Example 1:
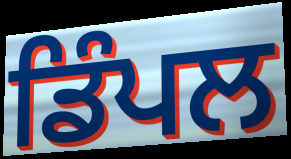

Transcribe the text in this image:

ਡਿੰਪਲ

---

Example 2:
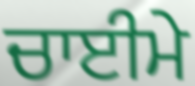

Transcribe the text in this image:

ਚਾਈਮੇ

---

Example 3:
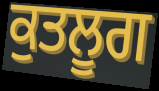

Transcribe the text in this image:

ਕੁਤਲੂਗ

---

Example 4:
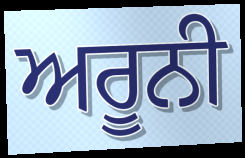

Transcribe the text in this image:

ਅਰੂਨੀ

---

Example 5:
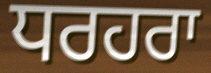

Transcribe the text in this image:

ਧਰਹਰਾ